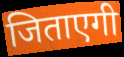
जिताएगी